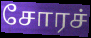
சோரச்